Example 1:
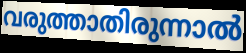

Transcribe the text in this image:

വരുത്താതിരുന്നാൽ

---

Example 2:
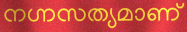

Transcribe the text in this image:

നഗ്നസത്യമാണ്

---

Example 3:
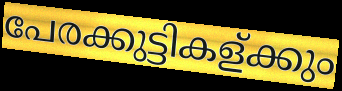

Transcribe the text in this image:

പേരക്കുട്ടികള്ക്കും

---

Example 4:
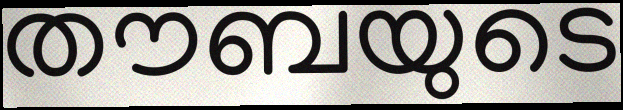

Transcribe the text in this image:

തൗബയുടെ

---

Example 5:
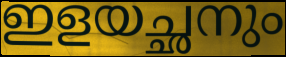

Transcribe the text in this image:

ഇളയച്ഛനും